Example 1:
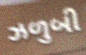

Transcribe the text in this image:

ઝળુબી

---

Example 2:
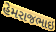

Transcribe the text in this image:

હેમરાજભાઇ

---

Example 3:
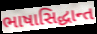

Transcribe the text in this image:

ભાષાસિદ્ધાન્ત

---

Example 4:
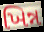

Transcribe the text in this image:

ખિન્ન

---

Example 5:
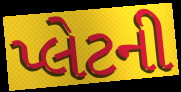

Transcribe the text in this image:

પ્લેટની